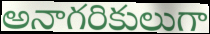
అనాగరికులుగా